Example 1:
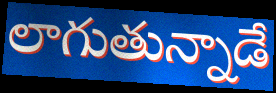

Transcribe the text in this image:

లాగుతున్నాడే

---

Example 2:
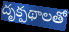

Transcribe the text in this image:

దృక్పథాలతో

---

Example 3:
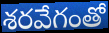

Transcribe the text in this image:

శరవేగంతో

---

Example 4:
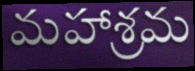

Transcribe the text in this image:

మహాశ్రమ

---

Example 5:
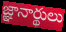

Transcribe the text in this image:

జ్ఞానార్థులు